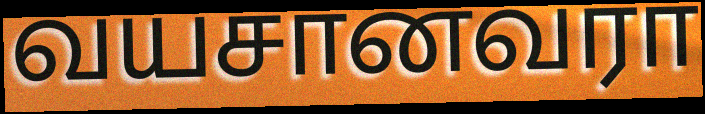
வயசானவரா